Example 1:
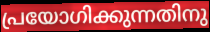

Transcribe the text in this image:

പ്രയോഗിക്കുന്നതിനു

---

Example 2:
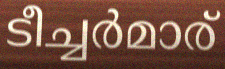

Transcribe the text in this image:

ടീച്ചർമാര്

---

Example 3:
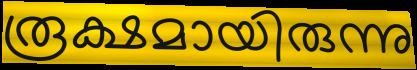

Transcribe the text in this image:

രൂക്ഷമായിരുന്നു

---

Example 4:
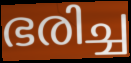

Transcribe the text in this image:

ഭരിച്ച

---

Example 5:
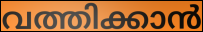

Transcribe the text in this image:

വത്തിക്കാൻ